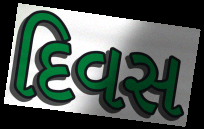
દિવસ